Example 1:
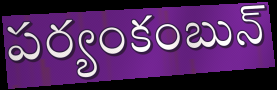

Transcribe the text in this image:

పర్యంకంబున్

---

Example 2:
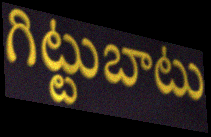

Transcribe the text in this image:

గిట్టుబాటు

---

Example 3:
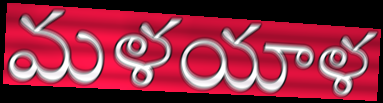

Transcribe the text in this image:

మళయాళ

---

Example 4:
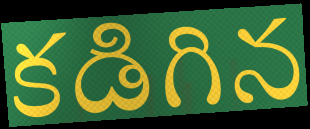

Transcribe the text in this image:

కడిగిన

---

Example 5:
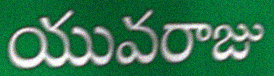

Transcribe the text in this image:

యువరాజు